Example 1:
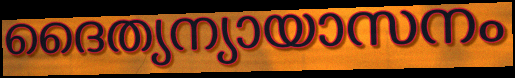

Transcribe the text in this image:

ദൈത്യന്യായാസനം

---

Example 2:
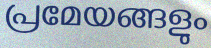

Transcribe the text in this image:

പ്രമേയങ്ങളും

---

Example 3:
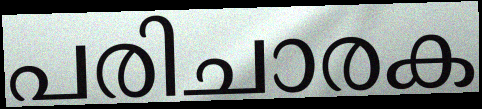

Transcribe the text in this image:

പരിചാരക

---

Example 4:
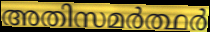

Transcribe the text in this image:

അതിസമർത്ഥർ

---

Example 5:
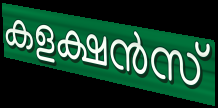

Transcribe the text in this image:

കളക്ഷൻസ്